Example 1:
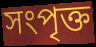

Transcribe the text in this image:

সংপৃক্ত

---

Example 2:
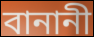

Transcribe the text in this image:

বানানী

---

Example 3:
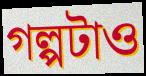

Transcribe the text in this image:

গল্পটাও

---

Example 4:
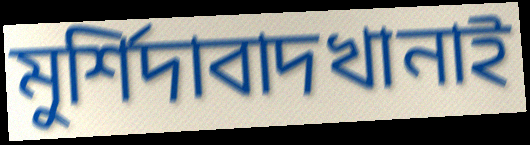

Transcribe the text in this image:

মুর্শিদাবাদখানাই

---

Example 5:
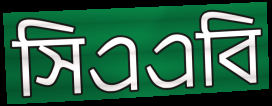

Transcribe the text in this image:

সিএএবি